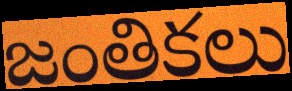
జంతికలు